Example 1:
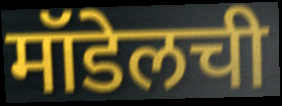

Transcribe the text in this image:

मॉडेलची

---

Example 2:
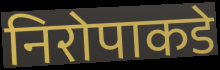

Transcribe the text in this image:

निरोपाकडे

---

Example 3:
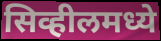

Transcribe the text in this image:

सिव्हीलमध्ये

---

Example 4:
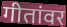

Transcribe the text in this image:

गीतांवर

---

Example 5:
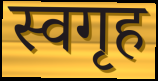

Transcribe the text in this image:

स्वगृह